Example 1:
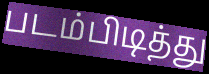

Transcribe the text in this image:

படம்பிடித்து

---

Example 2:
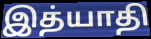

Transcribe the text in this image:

இத்யாதி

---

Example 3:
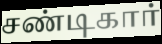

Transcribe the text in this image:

சண்டிகார்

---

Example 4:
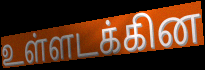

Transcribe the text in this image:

உள்ளடக்கின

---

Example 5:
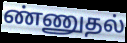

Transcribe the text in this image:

ண்ணுதல்